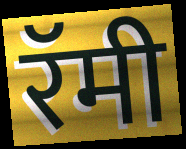
रॅमी